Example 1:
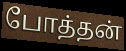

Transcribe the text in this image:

போத்தன்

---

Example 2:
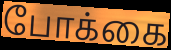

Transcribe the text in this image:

போக்கை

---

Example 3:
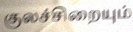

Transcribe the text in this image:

குலச்சிறையும்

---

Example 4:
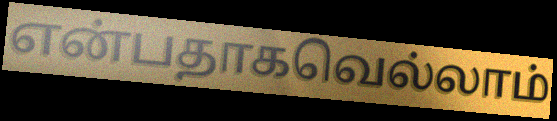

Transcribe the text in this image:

என்பதாகவெல்லாம்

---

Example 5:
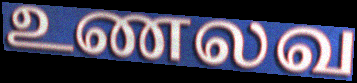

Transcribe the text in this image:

உணலவ